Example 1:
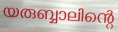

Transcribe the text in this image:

യരുബ്ബാലിന്റെ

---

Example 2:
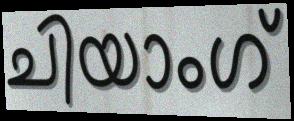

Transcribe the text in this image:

ചിയാംഗ്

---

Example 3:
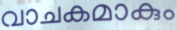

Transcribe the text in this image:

വാചകമാകും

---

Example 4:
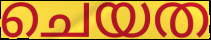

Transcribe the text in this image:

ചെയത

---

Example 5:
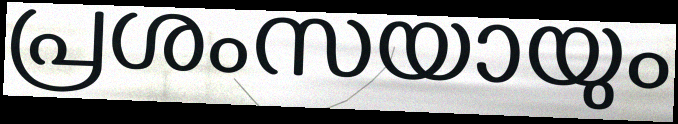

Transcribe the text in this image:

പ്രശംസയായും